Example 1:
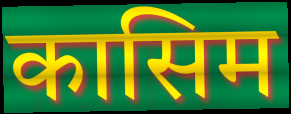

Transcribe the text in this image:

कासिम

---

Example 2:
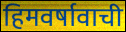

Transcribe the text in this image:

हिमवर्षावाची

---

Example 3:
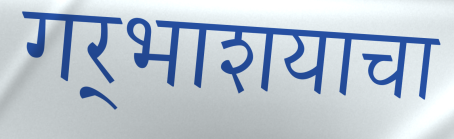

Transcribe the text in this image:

गर्भाशयाचा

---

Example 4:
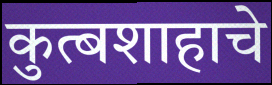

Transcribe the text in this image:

कुत्बशाहाचे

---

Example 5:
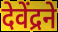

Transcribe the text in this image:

देवेंद्रने